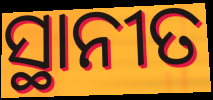
ସ୍ଥାନୀତ